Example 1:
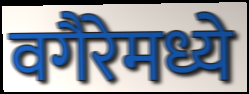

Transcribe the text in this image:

वगैरेमध्ये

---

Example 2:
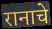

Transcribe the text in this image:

रानाचे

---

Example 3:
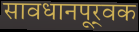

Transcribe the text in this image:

सावधानपूर्वक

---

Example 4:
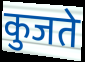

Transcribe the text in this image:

कुजते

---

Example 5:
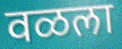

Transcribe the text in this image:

वळला